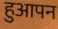
हुआपन